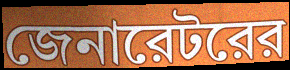
জেনারেটরের